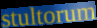
stultorum